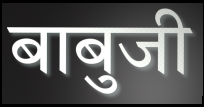
बाबुजी